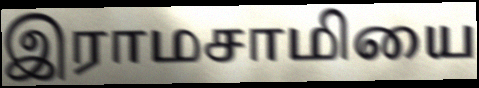
இராமசாமியை